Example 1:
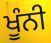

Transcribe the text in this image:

ਖੂੰਨੀ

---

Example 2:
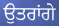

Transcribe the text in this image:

ਉਤਰਾਂਗੇ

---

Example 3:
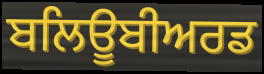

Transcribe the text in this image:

ਬਲਿਊਬੀਅਰਡ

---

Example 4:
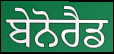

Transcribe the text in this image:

ਬੇਨੋਰੈਡ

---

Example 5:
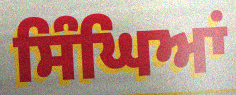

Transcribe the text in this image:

ਸਿੰਘਿਆਂ